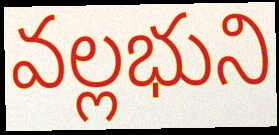
వల్లభుని